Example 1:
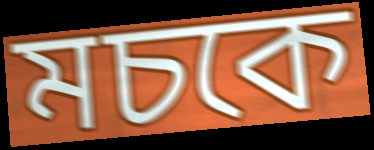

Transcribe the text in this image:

মচকে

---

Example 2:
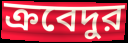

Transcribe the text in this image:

ক্রবেদুর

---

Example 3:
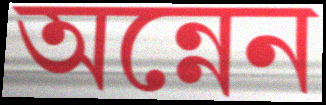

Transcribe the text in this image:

অন্নেন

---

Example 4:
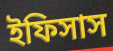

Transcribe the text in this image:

ইফিসাস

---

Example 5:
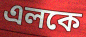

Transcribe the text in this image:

এলকে